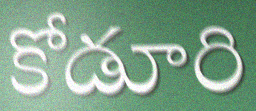
కోడూరి